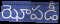
ఝోపడీ